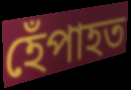
হেঁপাহত